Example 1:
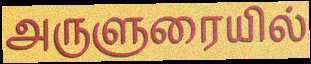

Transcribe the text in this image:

அருளுரையில்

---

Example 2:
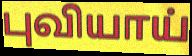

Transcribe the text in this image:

புவியாய்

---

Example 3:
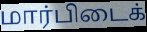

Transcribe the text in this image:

மார்பிடைக்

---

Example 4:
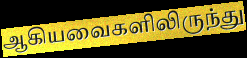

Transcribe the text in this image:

ஆகியவைகளிலிருந்து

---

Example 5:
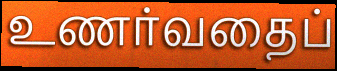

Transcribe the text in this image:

உணர்வதைப்